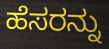
ಹೆಸರನ್ನು